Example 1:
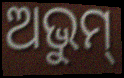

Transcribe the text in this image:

ଅଭୁମ୍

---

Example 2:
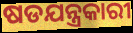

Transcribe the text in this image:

ଷଡଯନ୍ତ୍ରକାରୀ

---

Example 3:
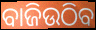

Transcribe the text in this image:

ବାଜିଉଠିବ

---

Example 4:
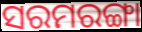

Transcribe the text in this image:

ସରମରଙ୍ଗା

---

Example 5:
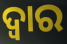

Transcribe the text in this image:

ଦ୍ବାର